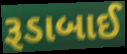
રૂડાબાઈ